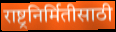
राष्ट्रनिर्मितीसाठी